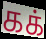
கக்